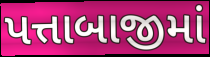
પત્તાબાજીમાં